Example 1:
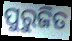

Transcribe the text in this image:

ପୁରୁଜିତ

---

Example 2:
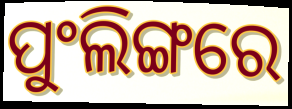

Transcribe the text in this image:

ପୁଂଲିଙ୍ଗରେ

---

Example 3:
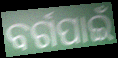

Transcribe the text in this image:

ବର୍ଗପାଇଁ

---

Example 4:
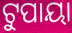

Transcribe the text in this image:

ଟୁପାୟା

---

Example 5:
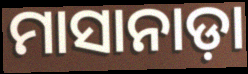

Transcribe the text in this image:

ମାସାନାଡ଼ା